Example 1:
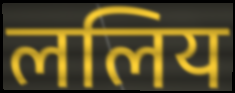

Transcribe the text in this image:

ललिय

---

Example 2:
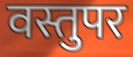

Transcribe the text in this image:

वस्तुपर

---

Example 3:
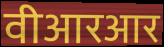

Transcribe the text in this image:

वीआरआर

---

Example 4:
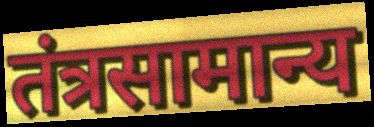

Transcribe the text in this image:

तंत्रसामान्य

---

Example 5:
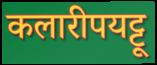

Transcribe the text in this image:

कलारीपयट्टू